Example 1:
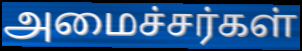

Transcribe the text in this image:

அமைச்சர்கள்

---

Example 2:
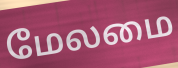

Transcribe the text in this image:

மேலமை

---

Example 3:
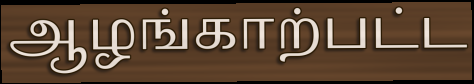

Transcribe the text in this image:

ஆழங்காற்பட்ட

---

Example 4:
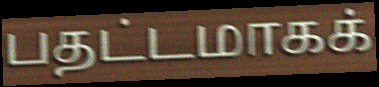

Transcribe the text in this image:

பதட்டமாகக்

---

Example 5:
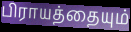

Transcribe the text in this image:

பிராயத்தையும்